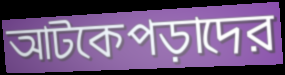
আটকেপড়াদের